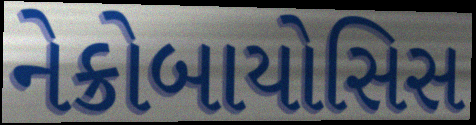
નેક્રોબાયોસિસ